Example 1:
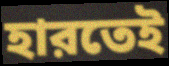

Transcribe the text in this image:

হারতেই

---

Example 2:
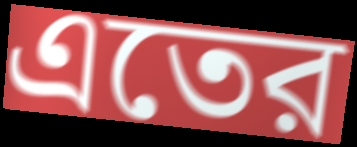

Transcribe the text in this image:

এতের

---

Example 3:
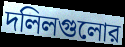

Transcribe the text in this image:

দলিলগুলোর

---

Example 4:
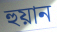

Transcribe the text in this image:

হুয়ান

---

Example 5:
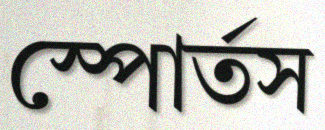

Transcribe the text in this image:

স্পোর্তস